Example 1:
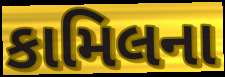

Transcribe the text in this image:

કામિલના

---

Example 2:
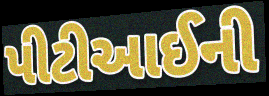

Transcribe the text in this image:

પીટીઆઈની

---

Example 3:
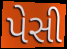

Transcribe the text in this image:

પેસી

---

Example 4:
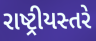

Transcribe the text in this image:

રાષ્ટ્રીયસ્તરે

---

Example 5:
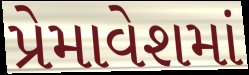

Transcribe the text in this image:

પ્રેમાવેશમાં